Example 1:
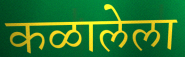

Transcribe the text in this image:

कळालेला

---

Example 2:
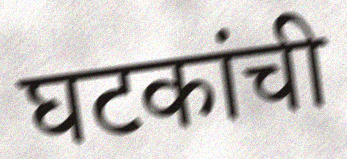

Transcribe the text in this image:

घटकांची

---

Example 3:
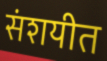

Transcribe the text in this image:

संशयीत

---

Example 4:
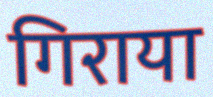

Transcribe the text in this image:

गिराया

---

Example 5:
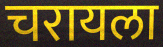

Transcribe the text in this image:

चरायला